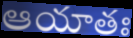
ఆయాతః